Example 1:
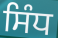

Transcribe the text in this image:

ਸਿੰਧ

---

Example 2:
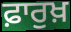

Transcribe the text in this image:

ਫ਼ਾਰੁਖ਼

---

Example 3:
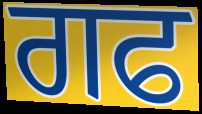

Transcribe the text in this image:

ਗਫ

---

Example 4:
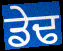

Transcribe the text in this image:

ਡੇਢ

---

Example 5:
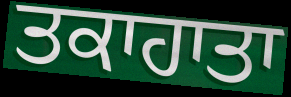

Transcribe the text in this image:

ਤਕਾਹਾਤਾ